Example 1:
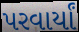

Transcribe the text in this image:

પરવાર્યાં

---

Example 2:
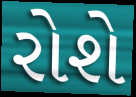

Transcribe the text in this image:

રોશે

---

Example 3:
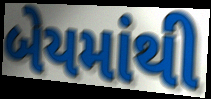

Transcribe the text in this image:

બેયમાંથી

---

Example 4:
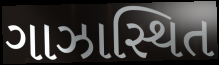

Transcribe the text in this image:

ગાઝાસ્થિત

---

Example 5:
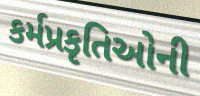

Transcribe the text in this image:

કર્મપ્રકૃતિઓની